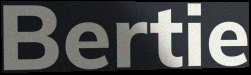
Bertie